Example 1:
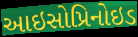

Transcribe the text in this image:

આઇસોપ્રિનોઇડ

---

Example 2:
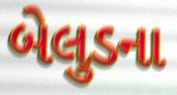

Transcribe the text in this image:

બેલુડના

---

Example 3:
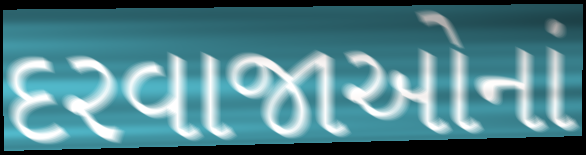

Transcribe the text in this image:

દરવાજાઓનાં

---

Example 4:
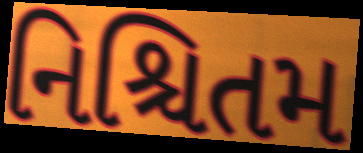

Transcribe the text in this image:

નિશ્ચિતમ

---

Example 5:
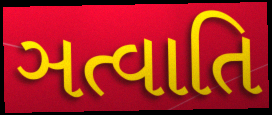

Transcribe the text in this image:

ઞત્વાતિ